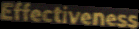
Effectiveness